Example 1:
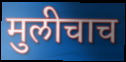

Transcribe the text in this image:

मुलीचाच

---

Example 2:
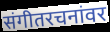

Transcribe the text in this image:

संगीतरचनांवर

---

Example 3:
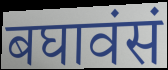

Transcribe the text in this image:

बघावंसं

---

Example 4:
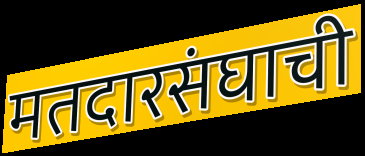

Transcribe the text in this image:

मतदारसंघाची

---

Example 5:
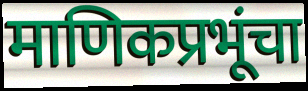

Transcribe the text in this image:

माणिकप्रभूंचा